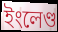
ইংলেণ্ড